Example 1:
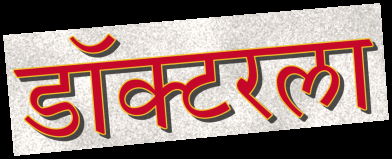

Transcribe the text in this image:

डॉक्टरला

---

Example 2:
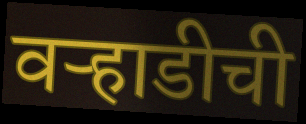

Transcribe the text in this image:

वऱ्हाडीची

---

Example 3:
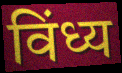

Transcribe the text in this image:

विंध्य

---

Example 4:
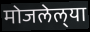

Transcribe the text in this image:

मोजलेल्या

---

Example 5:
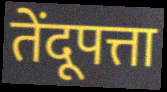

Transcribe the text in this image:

तेंदूपत्ता